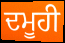
ਦਮੂਹੀ